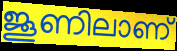
ജൂണിലാണ്